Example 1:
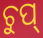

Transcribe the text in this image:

ଚୁପ୍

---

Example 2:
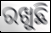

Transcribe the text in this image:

ରଖୁଛି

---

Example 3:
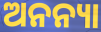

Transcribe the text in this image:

ଅନନ୍ୟା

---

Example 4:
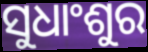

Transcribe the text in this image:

ସୁଧାଂଶୁର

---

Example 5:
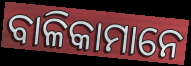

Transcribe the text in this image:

ବାଳିକାମାନେ